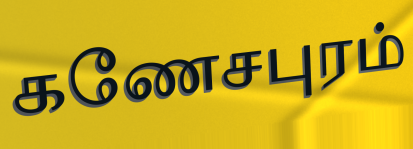
கணேசபுரம்